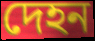
দেহন